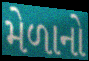
મેળાનો